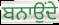
ਬਨਾਉਂਦੇ